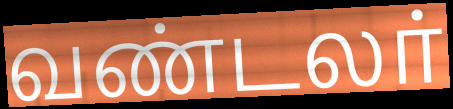
வண்டலர்